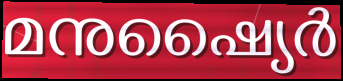
മനുഷ്യൈർ